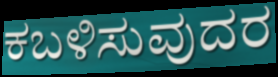
ಕಬಳಿಸುವುದರ